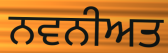
ਨਵਨੀਅਤ